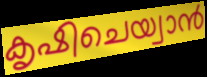
കൃഷിചെയ്വാൻ